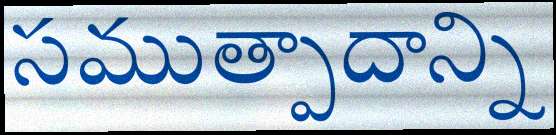
సముత్పాదాన్ని